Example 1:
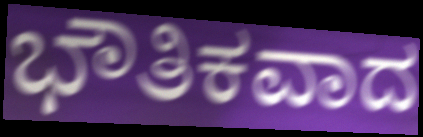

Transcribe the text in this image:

ಭೌತಿಕವಾದ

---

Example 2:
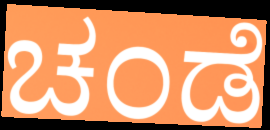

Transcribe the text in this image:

ಚಂಡೆ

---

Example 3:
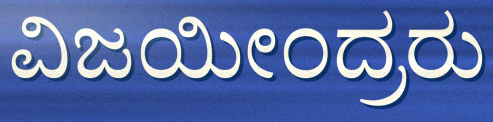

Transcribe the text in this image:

ವಿಜಯೀಂದ್ರರು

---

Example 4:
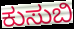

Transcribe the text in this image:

ಕುಸುಬಿ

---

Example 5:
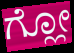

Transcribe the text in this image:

ಗ್ಲೋ